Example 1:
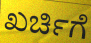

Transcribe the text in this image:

ಖರ್ಚಿಗೆ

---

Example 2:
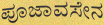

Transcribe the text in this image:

ಪೂಜಾವಸೇನ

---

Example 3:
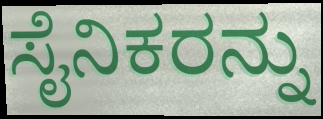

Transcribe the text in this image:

ಸೈನಿಕರನ್ನು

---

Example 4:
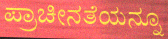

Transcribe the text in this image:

ಪ್ರಾಚೀನತೆಯನ್ನೂ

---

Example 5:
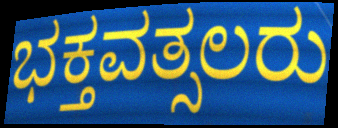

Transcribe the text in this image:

ಭಕ್ತವತ್ಸಲರು